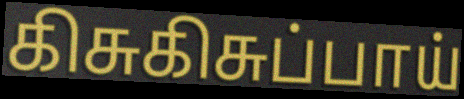
கிசுகிசுப்பாய்